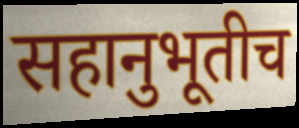
सहानुभूतीच